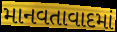
માનવતાવાદમાં